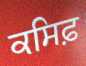
ਕਸਿਫ਼